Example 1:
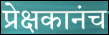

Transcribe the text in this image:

प्रेक्षकानंच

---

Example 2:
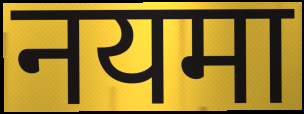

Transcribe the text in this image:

नयमा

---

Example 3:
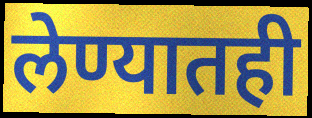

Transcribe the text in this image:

लेण्यातही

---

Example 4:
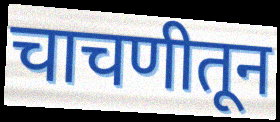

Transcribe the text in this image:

चाचणीतून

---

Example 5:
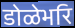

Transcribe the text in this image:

डोळेभरि